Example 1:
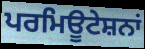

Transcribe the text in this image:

ਪਰਮਿਊਟੇਸ਼ਨਾਂ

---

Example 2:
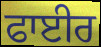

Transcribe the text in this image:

ਫਾਈਰ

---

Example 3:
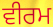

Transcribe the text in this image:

ਵੀਰਮ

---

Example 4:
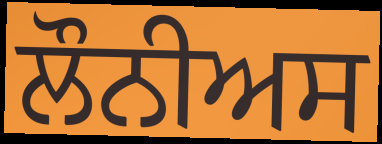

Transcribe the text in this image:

ਲੌਨੀਅਸ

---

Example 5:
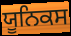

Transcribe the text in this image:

ਯੂਨਿਕਸ